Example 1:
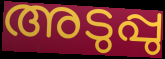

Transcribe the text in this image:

അടുപ്പു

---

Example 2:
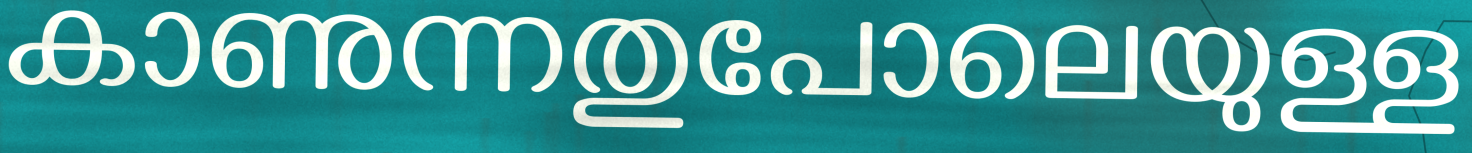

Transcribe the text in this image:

കാണുന്നതുപോലെയുള്ള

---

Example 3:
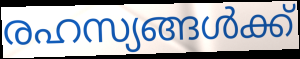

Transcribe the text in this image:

രഹസ്യങ്ങൾക്ക്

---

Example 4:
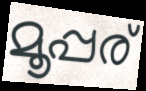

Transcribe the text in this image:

മൂപ്പര്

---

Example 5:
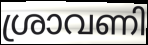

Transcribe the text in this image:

ശ്രാവണി